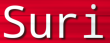
Suri